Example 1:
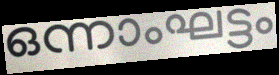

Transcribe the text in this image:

ഒന്നാംഘട്ടം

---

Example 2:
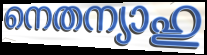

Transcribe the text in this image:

നെതന്യാഹു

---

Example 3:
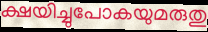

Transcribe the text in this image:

ക്ഷയിച്ചുപോകയുമരുതു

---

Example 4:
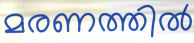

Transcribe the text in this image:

മരണത്തിൽ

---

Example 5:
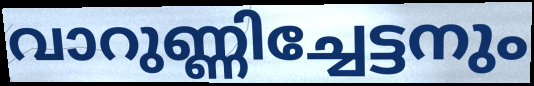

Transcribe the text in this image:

വാറുണ്ണിച്ചേട്ടനും